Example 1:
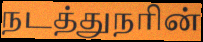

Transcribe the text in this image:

நடத்துநரின்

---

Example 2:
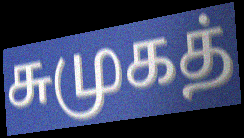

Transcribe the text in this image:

சுமுகத்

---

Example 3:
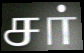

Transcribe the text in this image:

சர்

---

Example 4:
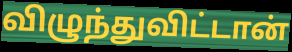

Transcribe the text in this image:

விழுந்துவிட்டான்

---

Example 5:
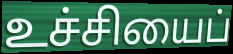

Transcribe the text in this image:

உச்சியைப்